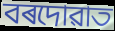
বৰদোৱাত